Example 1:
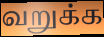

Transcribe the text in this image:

வறுக்க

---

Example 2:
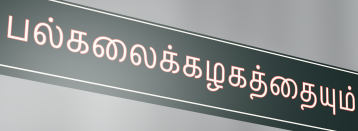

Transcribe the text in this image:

பல்கலைக்கழகத்தையும்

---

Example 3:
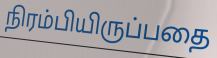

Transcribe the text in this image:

நிரம்பியிருப்பதை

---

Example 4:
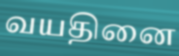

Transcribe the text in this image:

வயதினை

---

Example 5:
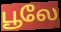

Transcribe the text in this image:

பூலே